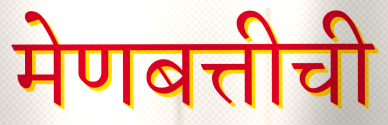
मेणबत्तीची